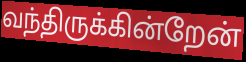
வந்திருக்கின்றேன்